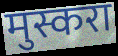
मुस्करा